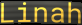
Linah